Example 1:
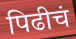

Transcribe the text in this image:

पिढीचं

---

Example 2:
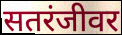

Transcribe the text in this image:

सतरंजीवर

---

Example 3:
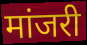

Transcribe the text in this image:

मांजरी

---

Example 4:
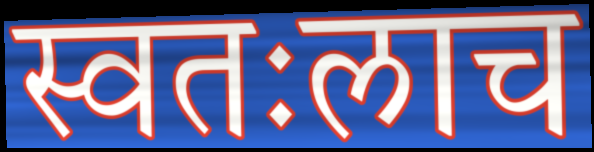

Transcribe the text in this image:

स्वतःलाच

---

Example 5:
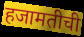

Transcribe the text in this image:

हजामतीची